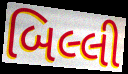
બિલ્લી